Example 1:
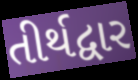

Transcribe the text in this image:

તીર્થદ્વાર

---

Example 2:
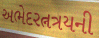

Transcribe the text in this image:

અભેદરત્નત્રયની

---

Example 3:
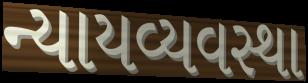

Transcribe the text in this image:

ન્યાયવ્યવસ્થા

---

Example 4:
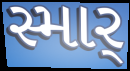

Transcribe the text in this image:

સ્માર્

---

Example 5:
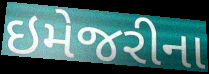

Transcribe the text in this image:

ઇમેજરીના